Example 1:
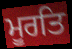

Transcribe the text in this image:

ਮੂਰਤਿ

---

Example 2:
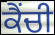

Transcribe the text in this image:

ਕੈਂਚੀ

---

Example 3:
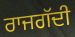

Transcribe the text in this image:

ਰਾਜਗੱਦੀ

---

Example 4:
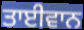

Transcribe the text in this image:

ਤਾਈਵਾਨ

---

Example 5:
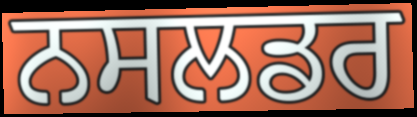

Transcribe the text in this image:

ਨਸਲਡਰ